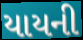
યાયની